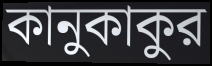
কানুকাকুর